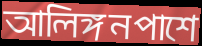
আলিঙ্গনপাশে